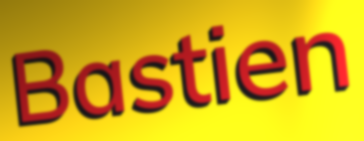
Bastien